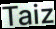
Taiz